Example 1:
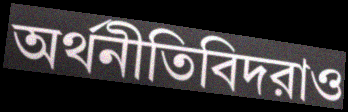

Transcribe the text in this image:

অর্থনীতিবিদরাও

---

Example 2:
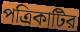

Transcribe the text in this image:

পত্রিকাটির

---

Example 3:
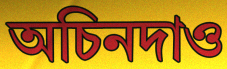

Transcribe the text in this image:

অচিনদাও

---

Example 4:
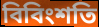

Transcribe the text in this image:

বিবিংশতি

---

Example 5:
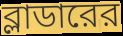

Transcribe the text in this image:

ব্লাডারের